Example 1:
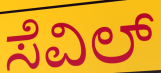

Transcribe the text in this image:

ಸೆವಿಲ್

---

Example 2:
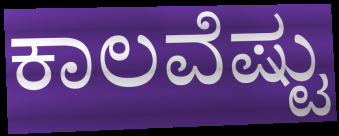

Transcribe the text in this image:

ಕಾಲವೆಷ್ಟು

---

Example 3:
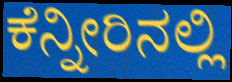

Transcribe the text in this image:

ಕೆನ್ನೀರಿನಲ್ಲಿ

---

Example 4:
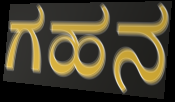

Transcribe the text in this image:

ಗಹನ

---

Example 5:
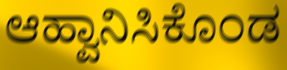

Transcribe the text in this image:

ಆಹ್ವಾನಿಸಿಕೊಂಡ